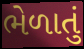
ભેળાતું